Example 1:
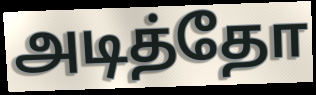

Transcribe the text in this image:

அடித்தோ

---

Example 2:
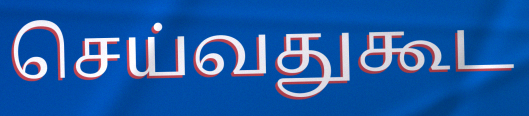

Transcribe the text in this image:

செய்வதுகூட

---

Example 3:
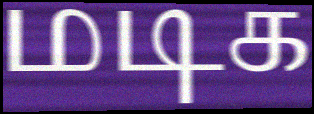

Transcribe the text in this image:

மடிக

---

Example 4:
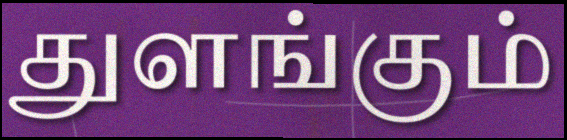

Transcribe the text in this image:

துளங்கும்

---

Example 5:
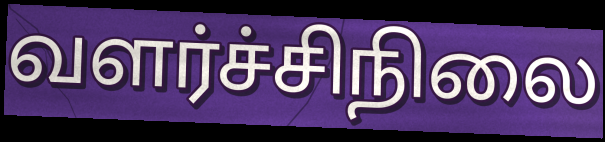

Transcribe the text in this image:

வளர்ச்சிநிலை